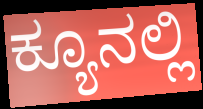
ಕ್ಯೂನಲ್ಲಿ